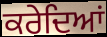
ਕਰੇਦਿਆਂ